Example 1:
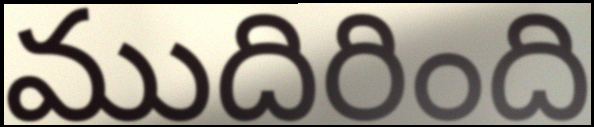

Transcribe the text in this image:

ముదిరింది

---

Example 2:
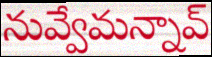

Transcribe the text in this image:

నువ్వేమన్నావ్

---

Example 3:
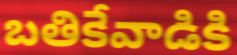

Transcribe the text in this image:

బతికేవాడికి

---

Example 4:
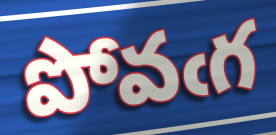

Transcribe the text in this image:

పోవఁగ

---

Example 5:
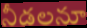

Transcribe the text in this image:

నీడలనూ